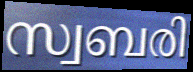
സ്വബരി